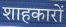
शाहकारों